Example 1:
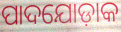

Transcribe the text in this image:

ପାଦଯୋଡ଼ାକ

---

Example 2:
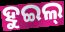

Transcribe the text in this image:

ହୁଇଲ୍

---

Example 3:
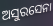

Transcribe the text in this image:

ଅସୁରସେନା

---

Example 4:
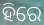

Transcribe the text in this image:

ହିରେ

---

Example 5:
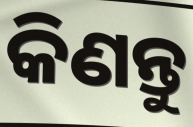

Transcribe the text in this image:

କିଣନ୍ତୁ